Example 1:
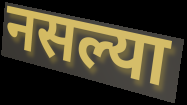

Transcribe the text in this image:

नसल्या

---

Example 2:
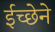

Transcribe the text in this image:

ईच्छेने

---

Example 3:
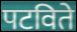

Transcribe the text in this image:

पटविते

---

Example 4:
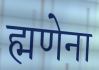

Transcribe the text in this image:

ह्मणेना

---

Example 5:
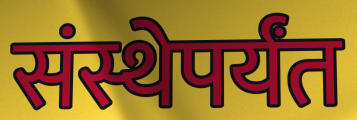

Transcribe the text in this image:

संस्थेपर्यंत